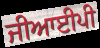
ਜੀਆਈਪੀ